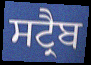
ਸਟ੍ਰੈਬ